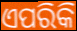
ଏପରିକି